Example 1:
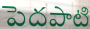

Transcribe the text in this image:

పెదపాటి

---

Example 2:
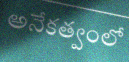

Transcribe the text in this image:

అనేకత్వంలో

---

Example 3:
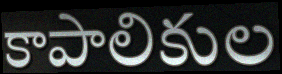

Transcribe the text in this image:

కాపాలికుల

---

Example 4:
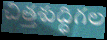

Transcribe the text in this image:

చిత్తశుద్ధిగల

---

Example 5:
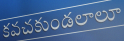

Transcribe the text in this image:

కవచకుండలాలూ